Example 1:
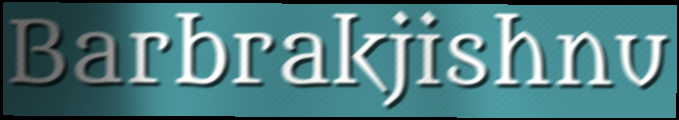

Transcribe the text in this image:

Barbrakjishnu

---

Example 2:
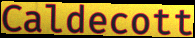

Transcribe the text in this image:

Caldecott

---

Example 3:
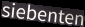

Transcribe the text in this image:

siebenten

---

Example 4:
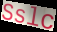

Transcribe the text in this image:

Sslc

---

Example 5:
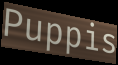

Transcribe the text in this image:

Puppis